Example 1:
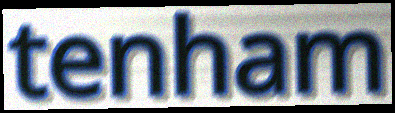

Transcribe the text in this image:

tenham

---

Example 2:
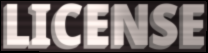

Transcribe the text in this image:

LICENSE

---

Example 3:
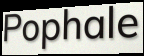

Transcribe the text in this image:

Pophale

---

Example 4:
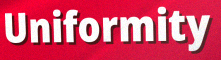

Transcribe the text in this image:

Uniformity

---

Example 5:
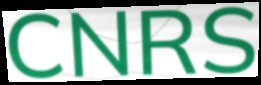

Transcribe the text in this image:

CNRS